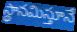
స్థానమిస్తూనే